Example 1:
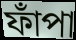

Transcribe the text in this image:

ফাঁপা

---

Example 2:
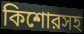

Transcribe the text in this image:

কিশোরসহ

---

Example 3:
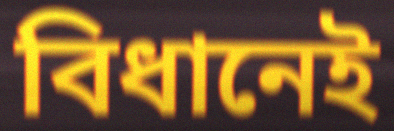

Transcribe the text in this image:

বিধানেই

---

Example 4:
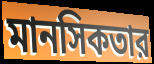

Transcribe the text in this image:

মানসিকতার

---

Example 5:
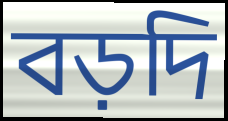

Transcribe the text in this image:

বড়দি